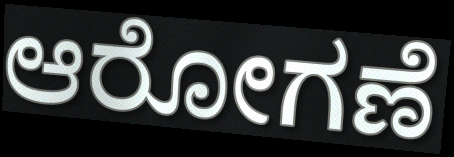
ಆರೋಗಣೆ